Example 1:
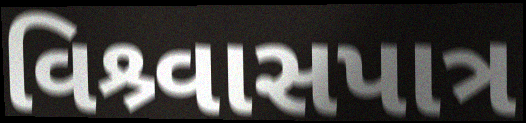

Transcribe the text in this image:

વિશ્ર્વાસપાત્ર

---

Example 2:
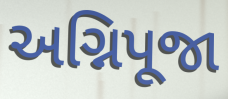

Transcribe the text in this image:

અગ્નિપૂજા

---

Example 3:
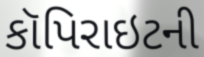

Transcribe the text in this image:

કૉપિરાઇટની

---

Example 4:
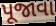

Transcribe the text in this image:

પૂજાવા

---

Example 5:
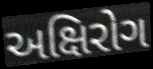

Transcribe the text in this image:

અક્ષિરોગ